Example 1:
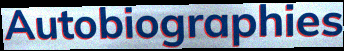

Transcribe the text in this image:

Autobiographies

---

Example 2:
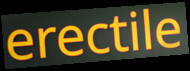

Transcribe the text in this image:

erectile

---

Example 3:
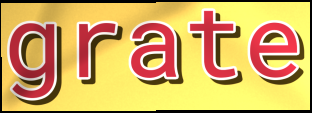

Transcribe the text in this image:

grate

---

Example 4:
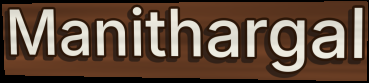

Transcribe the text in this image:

Manithargal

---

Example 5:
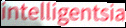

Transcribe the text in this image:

intelligentsia